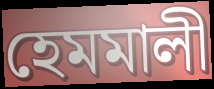
হেমমালী